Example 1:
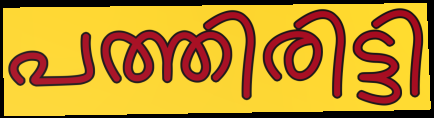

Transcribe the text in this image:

പത്തിരിട്ടി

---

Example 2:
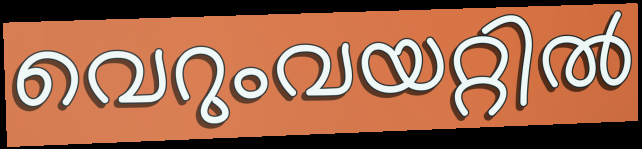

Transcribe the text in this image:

വെറുംവയറ്റിൽ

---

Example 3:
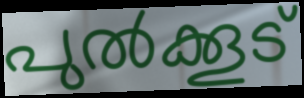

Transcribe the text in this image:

പുൽക്കൂട്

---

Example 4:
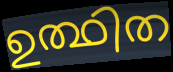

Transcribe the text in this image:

ഉത്ഥിത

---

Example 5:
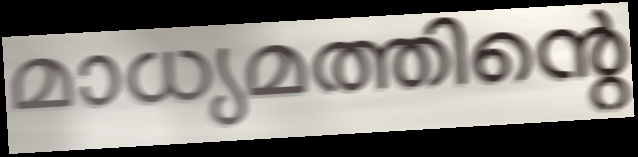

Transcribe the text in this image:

മാധ്യമത്തിന്റെ